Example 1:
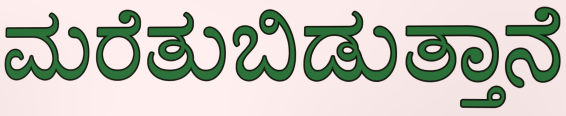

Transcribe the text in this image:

ಮರೆತುಬಿಡುತ್ತಾನೆ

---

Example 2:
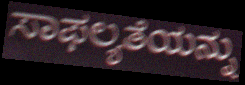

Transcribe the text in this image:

ಸಾಫಲ್ಯತೆಯನ್ನು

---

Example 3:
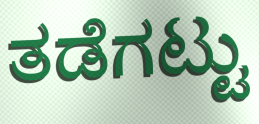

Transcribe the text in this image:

ತಡೆಗಟ್ಟು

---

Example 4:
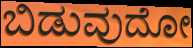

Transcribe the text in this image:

ಬಿಡುವುದೋ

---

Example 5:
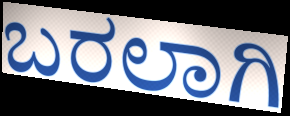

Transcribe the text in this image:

ಬರಲಾಗಿ